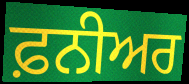
ਫ਼ਨੀਅਰ